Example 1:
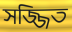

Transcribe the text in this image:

সজ্জিত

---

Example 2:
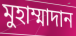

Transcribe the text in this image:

মুহাম্মাদান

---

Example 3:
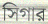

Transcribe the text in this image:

সিগার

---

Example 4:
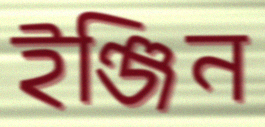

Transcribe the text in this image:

ইঞ্জিন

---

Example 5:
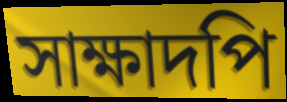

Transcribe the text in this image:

সাক্ষাদপি